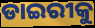
ଡାଇରୀକୁ